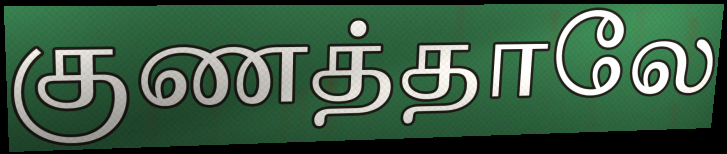
குணத்தாலே